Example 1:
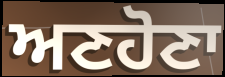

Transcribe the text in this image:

ਅਣਹੋਣਾ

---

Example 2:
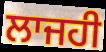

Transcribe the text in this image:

ਲਾਜਹੀ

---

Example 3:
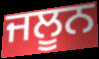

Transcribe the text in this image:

ਜਲੂਨ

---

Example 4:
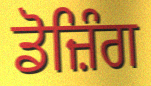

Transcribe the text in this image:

ਡੋਜ਼ਿੰਗ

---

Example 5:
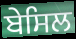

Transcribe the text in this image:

ਬੇਸਿਲ